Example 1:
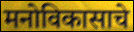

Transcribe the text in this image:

मनोविकासाचे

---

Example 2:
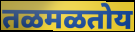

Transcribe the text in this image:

तळमळतोय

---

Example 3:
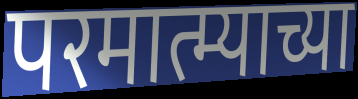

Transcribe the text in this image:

परमात्म्याच्या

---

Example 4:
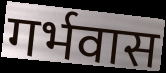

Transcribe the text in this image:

गर्भवास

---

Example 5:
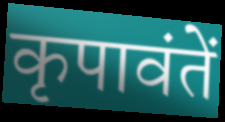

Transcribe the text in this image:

कृपावंतें